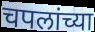
चपलांच्या